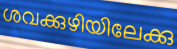
ശവക്കുഴിയിലേക്കു